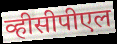
व्हीसीपीएल